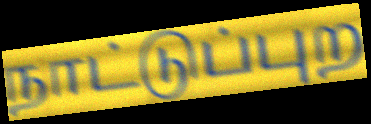
நாட்டுப்புற